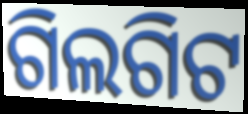
ଗିଲଗିଟ